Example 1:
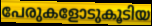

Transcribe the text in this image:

പേരുകളോടുകൂടിയ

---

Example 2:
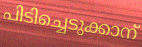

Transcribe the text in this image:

പിടിച്ചെടുക്കാന്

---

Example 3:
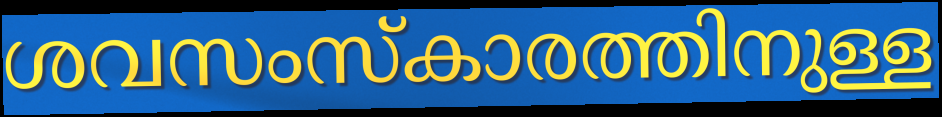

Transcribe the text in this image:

ശവസംസ്കാരത്തിനുള്ള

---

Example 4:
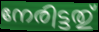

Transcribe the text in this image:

നേരിട്ടതു്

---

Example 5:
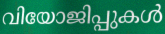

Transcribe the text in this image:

വിയോജിപ്പുകൾ